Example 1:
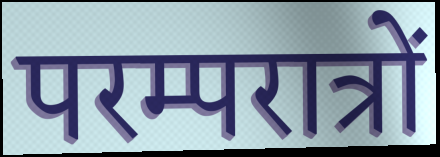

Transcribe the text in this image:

परम्परात्रों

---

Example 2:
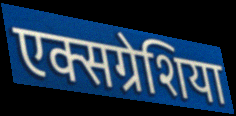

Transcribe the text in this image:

एक्सग्रेशिया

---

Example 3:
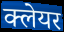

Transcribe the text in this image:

क्लेयर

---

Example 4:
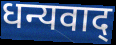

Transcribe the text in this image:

धन्यवाद्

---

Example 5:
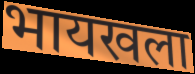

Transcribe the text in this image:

भायखला